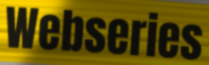
Webseries